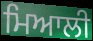
ਮਿਆਲੀ